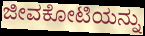
ಜೀವಕೋಟಿಯನ್ನು